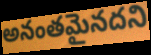
అనంతమైనదని